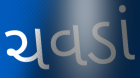
ચવડાં